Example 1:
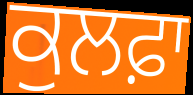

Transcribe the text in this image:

ਕੁਲਫ਼ਾ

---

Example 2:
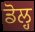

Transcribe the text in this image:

ਡੋਲ੍ਹ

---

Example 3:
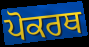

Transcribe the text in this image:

ਪੋਕਰਥ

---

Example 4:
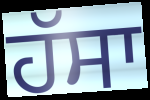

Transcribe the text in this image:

ਹੱਸਾ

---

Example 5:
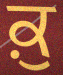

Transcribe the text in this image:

ਕ਼ੁ